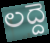
లద్దె